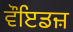
ਵੌਇਡਜ਼